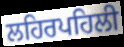
ਲਹਿਰਪਹਿਲੀ